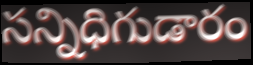
సన్నిధిగుడారం